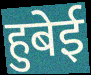
हुबेई